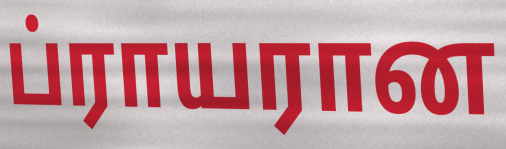
ப்ராயரான